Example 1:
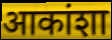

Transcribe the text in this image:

आकांशा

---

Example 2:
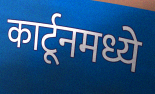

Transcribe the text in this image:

कार्टूनमध्ये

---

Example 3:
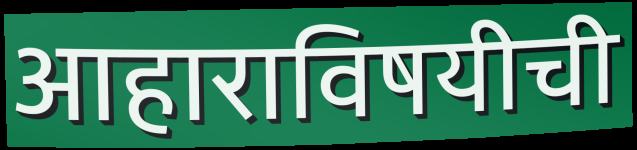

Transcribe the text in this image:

आहाराविषयीची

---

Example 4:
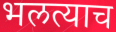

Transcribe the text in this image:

भलत्याच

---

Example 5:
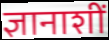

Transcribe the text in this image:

ज्ञानाशीं